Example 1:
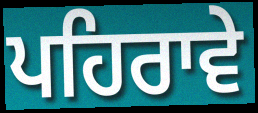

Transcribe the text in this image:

ਪਹਿਰਾਵੇ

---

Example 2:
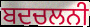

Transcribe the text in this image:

ਬਦਚਲਨੀ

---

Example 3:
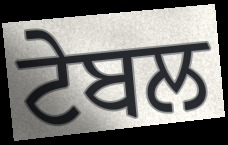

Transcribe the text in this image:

ਟੇਬਲ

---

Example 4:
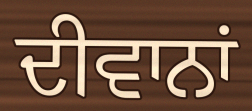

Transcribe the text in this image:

ਦੀਵਾਨਾਂ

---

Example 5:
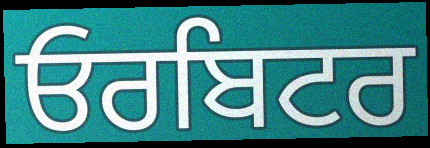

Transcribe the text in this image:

ਓਰਬਿਟਰ